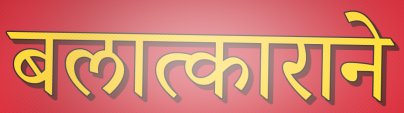
बलात्काराने